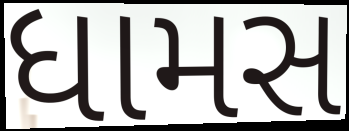
ધામસ